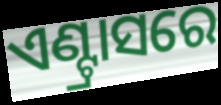
ଏଣ୍ଟ୍ରାସରେ